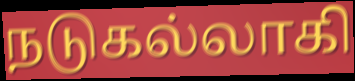
நடுகல்லாகி